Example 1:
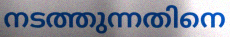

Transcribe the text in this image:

നടത്തുന്നതിനെ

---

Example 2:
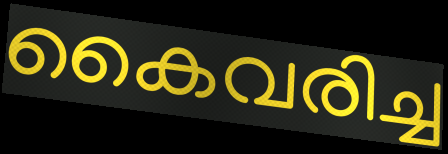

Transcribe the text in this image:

കൈവരിച്ച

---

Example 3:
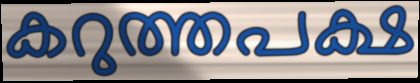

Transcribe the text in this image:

കറുത്തപക്ഷ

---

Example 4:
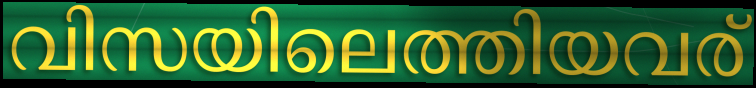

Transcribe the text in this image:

വിസയിലെത്തിയവര്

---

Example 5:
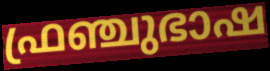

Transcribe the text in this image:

ഫ്രഞ്ചുഭാഷ